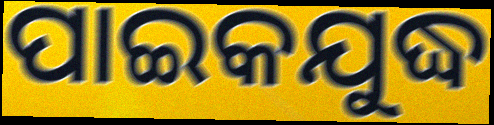
ପାଇକଯୁଦ୍ଧ